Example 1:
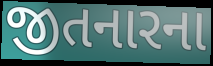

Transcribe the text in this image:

જીતનારના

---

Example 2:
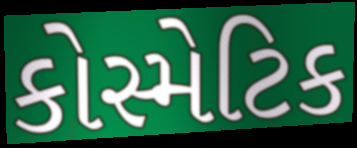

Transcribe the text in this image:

કોસ્મેટિક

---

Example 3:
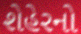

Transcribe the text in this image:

શેહેરનો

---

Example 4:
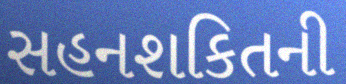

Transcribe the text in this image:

સહનશકિતની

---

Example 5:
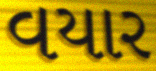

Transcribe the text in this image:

વયાર